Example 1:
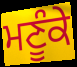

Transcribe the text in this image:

ਮਣੂੰਕੇ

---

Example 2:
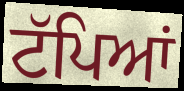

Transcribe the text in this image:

ਟੱਪਿਆਂ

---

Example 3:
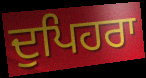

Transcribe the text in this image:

ਦੁਪਿਹਰਾ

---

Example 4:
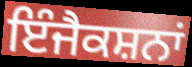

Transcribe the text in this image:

ਇੰਜੈਕਸ਼ਨਾਂ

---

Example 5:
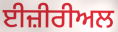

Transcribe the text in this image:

ਈਜ਼ੀਰੀਅਲ